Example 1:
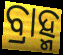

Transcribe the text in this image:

ବ୍ରାହ୍ମ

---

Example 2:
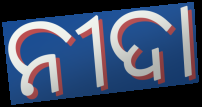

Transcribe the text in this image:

ନୀଦା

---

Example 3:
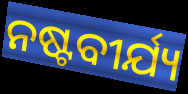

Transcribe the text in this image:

ନଷ୍ଟବୀର୍ଯ୍ୟ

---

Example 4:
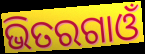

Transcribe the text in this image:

ଭିତରଗାଓଁ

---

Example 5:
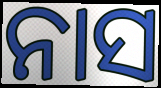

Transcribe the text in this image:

ନାସ